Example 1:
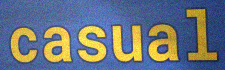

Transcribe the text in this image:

casual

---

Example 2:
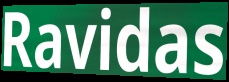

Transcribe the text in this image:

Ravidas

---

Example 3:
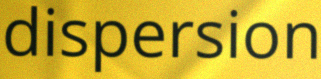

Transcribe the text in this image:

dispersion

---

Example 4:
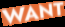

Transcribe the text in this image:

WANT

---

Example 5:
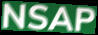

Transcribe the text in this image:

NSAP